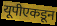
यूपीएकडून